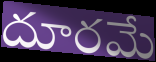
దూరమే